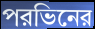
পরভিনের